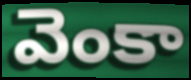
వెంకా